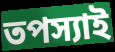
তপস্যাই